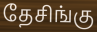
தேசிங்கு